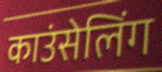
काउंसेलिंग